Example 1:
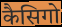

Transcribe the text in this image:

कैसिगो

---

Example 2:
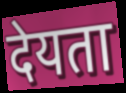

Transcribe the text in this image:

देयता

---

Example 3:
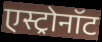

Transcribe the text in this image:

एस्ट्रोनॉट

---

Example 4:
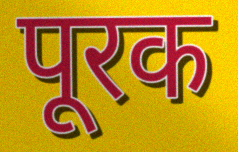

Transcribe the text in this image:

पूरक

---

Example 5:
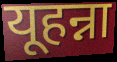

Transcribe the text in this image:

यूहन्ना